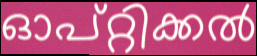
ഓപ്റ്റിക്കൽ